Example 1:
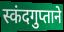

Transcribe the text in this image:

स्कंदगुप्ताने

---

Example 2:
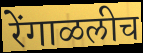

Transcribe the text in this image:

रेंगाळलीच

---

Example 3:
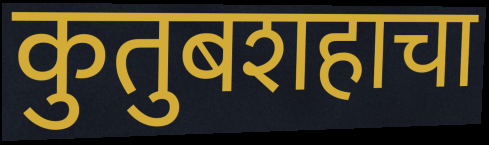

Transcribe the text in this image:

कुतुबशहाचा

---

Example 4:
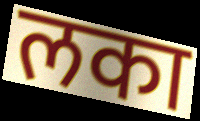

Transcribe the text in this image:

लका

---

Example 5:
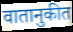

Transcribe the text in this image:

वातानुकीत